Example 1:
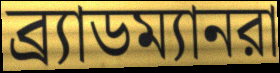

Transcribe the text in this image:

ব্র্যাডম্যানরা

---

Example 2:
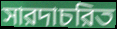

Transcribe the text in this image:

সারদাচরিত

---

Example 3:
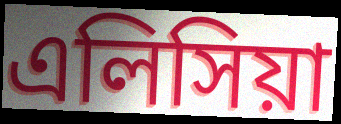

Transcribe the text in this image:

এলিসিয়া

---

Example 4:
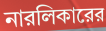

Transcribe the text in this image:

নারলিকারের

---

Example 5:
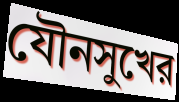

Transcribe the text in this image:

যৌনসুখের